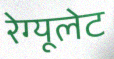
रेग्यूलेट